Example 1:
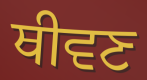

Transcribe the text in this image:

ਥੀਵਣ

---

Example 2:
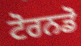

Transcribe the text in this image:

ਟੋਰਨਡੋ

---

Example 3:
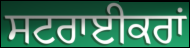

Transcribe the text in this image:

ਸਟਰਾਈਕਰਾਂ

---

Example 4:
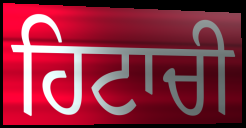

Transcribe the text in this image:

ਹਿਟਾਚੀ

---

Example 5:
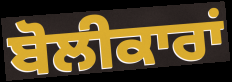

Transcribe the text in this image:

ਬੋਲੀਕਾਰਾਂ